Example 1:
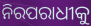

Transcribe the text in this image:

ନିରପରାଧୀକୁ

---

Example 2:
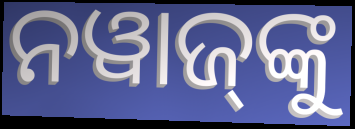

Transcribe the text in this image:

ନୱାଜ୍‍ଙ୍କୁ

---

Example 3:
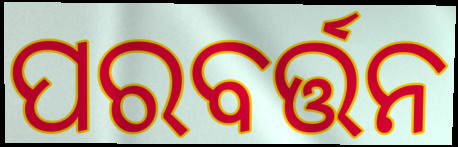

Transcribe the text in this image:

ପରବର୍ତ୍ତନ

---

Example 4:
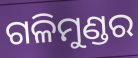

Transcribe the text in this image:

ଗଳିମୁଣ୍ଡର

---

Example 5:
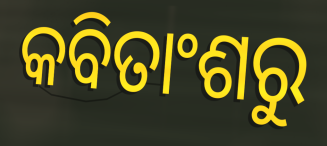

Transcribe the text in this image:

କବିତାଂଶରୁ